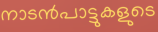
നാടൻപാട്ടുകളുടെ